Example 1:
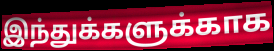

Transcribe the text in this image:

இந்துக்களுக்காக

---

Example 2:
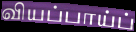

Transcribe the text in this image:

வியப்பாய்ப்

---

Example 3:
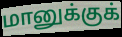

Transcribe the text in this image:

மானுக்குக்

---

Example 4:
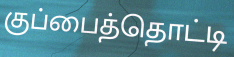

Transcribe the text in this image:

குப்பைத்தொட்டி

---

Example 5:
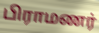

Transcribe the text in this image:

பிராமணர்